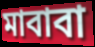
মাবাবা